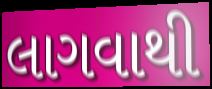
લાગવાથી